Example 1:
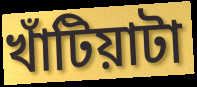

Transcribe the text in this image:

খাঁটিয়াটা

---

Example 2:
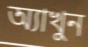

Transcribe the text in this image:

অ্যাখুন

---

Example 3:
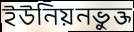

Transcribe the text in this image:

ইউনিয়নভুক্ত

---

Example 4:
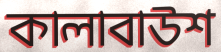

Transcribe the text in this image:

কালাবাউশ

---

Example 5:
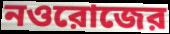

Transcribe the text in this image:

নওরোজের